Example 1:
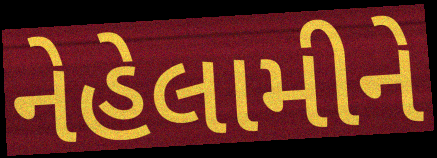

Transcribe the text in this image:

નેહેલામીને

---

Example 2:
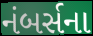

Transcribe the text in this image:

નંબર્સના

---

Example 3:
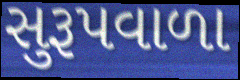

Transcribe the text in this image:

સુરૂપવાળા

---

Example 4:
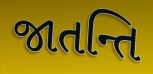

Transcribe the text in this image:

જાતન્તિ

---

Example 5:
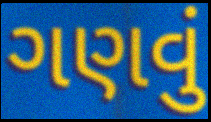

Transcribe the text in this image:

ગણવું